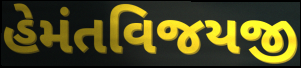
હેમંતવિજયજી